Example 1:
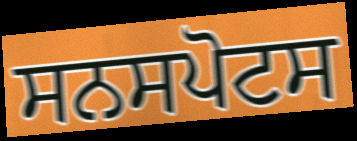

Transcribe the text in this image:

ਸਨਸਪੋਟਸ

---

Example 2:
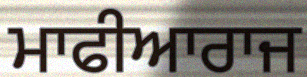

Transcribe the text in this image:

ਮਾਫੀਆਰਾਜ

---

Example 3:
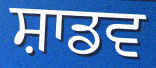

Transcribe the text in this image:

ਸ਼ਾਡਵ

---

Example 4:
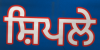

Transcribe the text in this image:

ਸ਼ਿਪਲੇ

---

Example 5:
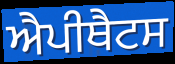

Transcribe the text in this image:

ਐਪੀਥੈਟਸ